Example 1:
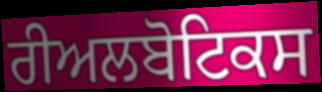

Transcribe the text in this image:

ਰੀਅਲਬੋਟਿਕਸ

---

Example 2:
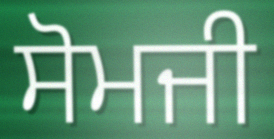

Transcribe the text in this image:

ਸੋਮਜੀ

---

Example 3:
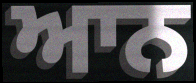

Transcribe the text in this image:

ਆਨ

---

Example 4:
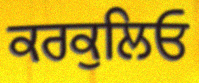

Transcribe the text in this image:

ਕਰਕੁਲਿਓ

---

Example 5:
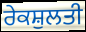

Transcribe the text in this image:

ਰੇਕਸ਼ੁਲਤੀ